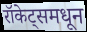
रॉकेट्समधून